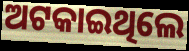
ଅଟକାଇଥିଲେ